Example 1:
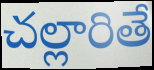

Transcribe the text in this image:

చల్లారితే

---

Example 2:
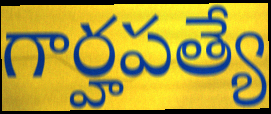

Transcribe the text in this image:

గార్హపత్యే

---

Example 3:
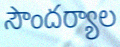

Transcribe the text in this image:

సౌందర్యాల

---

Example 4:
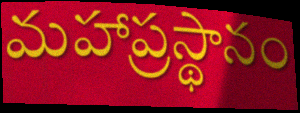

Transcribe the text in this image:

మహాప్రస్థానం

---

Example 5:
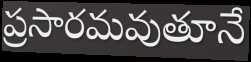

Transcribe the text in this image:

ప్రసారమవుతూనే